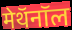
मेथॅनॉल